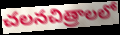
చలనచిత్రాలలో